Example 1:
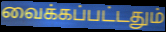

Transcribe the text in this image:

வைக்கப்பட்டதும்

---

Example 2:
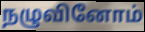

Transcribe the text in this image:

நழுவினோம்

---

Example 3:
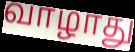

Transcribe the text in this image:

வாழாது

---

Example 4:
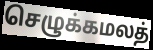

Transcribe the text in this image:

செழுக்கமலத்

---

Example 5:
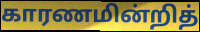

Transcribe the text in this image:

காரணமின்றித்